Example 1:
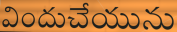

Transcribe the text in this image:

విందుచేయును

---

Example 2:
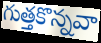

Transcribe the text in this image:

గుత్తకొన్నవా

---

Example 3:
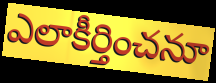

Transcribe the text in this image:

ఎలాకీర్తించనూ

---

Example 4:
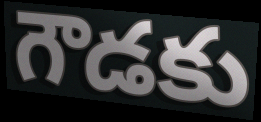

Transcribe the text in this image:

గౌడకు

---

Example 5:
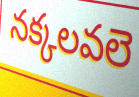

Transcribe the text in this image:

నక్కలవలె